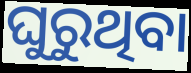
ଘୁରୁଥିବା